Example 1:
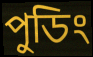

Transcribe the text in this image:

পুডিং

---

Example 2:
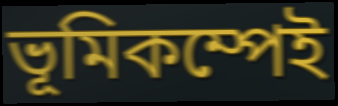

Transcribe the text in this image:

ভূমিকম্পেই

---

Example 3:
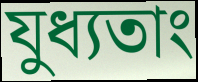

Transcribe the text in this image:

যুধ্যতাং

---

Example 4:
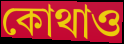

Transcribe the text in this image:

কোথাও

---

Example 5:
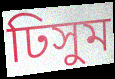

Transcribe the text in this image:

ঢিসুম